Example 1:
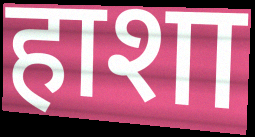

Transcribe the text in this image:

हाशा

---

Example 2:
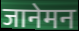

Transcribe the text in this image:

जानेमन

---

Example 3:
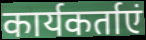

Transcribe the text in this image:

कार्यकर्ताएं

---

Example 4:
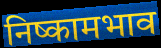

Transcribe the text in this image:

निष्कामभाव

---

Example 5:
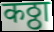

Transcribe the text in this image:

कठ्ठा